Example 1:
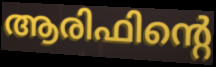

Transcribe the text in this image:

ആരിഫിന്റെ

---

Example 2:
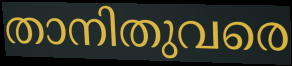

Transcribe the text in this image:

താനിതുവരെ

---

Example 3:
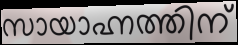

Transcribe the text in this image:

സായാഹ്നത്തിന്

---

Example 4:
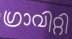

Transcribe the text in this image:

ഗ്രാവിറ്റി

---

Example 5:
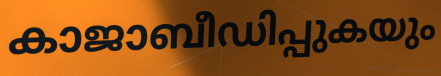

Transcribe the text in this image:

കാജാബീഡിപ്പുകയും